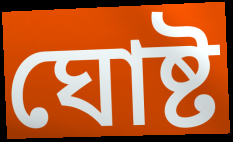
ঘোষ্ট